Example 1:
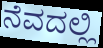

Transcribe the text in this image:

ನೆವದಲ್ಲಿ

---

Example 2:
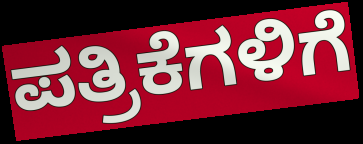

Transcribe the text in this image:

ಪತ್ರಿಕೆಗಳಿಗೆ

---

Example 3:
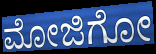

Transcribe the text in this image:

ಮೋಜಿಗೋ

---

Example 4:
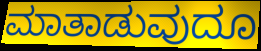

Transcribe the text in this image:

ಮಾತಾಡುವುದೂ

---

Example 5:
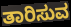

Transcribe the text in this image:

ತಾರಿಸುವ